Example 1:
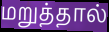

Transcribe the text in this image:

மறுத்தால்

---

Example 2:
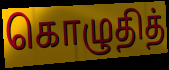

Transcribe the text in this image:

கொழுதித்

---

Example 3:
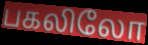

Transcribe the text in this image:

பகலிலோ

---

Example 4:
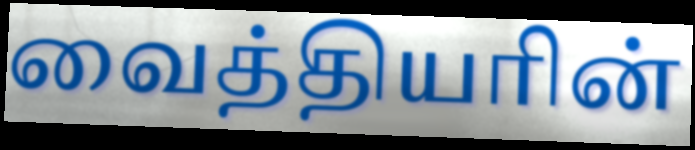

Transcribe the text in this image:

வைத்தியரின்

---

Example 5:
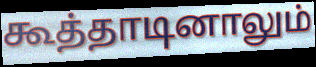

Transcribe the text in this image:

கூத்தாடினாலும்